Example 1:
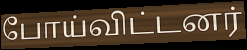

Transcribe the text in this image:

போய்விட்டனர்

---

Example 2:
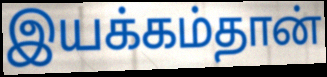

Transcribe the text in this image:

இயக்கம்தான்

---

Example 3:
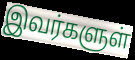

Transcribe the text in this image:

இவர்களுள்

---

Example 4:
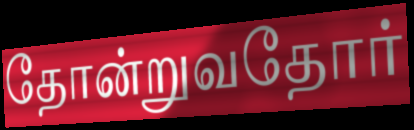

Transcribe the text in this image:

தோன்றுவதோர்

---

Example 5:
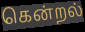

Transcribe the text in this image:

கென்றல்